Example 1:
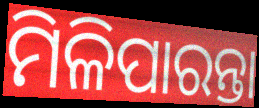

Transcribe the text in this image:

ମିଳିପାରନ୍ତା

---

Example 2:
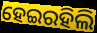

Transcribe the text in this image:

ହେଇରହିଲି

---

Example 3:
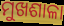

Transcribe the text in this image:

ମୁଖଶାଳା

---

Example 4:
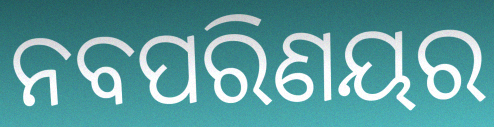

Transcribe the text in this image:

ନବପରିଣୟର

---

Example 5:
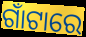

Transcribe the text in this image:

ଗାଁଟାରେ